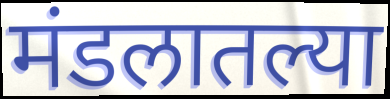
मंडलातल्या